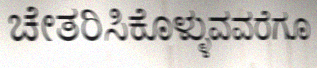
ಚೇತರಿಸಿಕೊಳ್ಳುವವರೆಗೂ